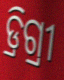
ଡ୍ରିଗ୍ରୀ